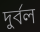
দুর্বল